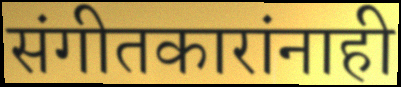
संगीतकारांनाही